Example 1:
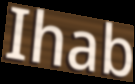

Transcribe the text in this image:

Ihab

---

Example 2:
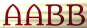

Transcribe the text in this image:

AABB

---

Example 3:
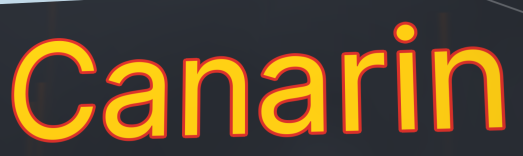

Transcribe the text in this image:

Canarin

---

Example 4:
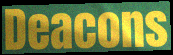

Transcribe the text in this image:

Deacons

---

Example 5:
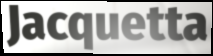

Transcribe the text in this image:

Jacquetta